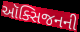
ઑક્સિજનની